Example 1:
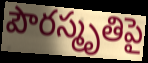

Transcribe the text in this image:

పౌరస్మృతిపై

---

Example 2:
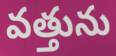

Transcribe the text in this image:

వత్తును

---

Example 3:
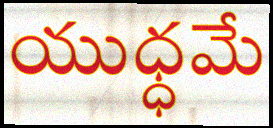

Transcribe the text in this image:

యుధ్ధమే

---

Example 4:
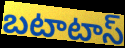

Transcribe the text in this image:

బటాటాస్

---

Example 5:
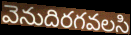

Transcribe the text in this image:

వెనుదిరగవలసి